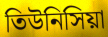
তিউনিসিয়া